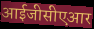
आईजीसीएआर